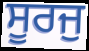
ਸੂਰਜੁ